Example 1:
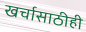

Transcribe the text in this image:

खर्चासाठीही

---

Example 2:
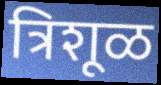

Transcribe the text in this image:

त्रिशूळ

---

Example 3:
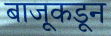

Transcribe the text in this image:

बाजूकडून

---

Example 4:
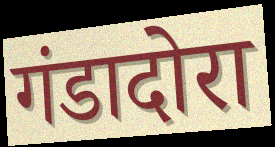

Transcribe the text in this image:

गंडादोरा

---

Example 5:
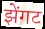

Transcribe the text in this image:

झेंगट